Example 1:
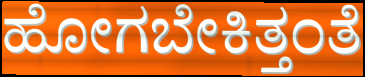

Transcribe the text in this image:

ಹೋಗಬೇಕಿತ್ತಂತೆ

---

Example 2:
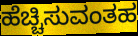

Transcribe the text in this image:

ಹೆಚ್ಚಿಸುವಂತಹ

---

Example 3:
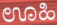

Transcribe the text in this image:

ಊಹಿ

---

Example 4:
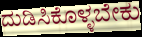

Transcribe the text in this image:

ದುಡಿಸಿಕೊಳ್ಳಬೇಕು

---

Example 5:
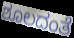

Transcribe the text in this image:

ಶೂಲದಂತೆ